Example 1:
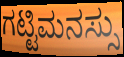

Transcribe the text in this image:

ಗಟ್ಟಿಮನಸ್ಸು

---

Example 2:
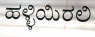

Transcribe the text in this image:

ಹಳ್ಳಿಯಿರಲಿ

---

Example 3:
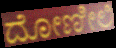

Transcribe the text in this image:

ದೋಣೀಲಿ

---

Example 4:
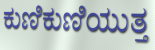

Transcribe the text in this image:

ಕುಣಿಕುಣಿಯುತ್ತ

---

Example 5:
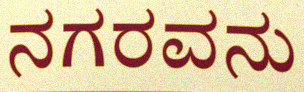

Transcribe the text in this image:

ನಗರವನು